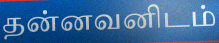
தன்னவனிடம்